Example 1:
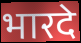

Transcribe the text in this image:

भारदे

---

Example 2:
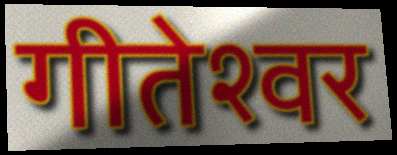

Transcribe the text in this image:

गीतेश्वर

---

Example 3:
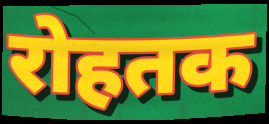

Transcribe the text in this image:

रोहतक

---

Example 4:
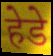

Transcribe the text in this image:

हेडे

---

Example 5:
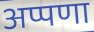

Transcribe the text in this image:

अप्पणा